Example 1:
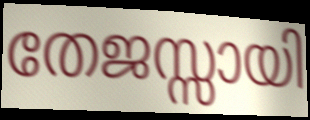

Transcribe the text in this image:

തേജസ്സായി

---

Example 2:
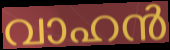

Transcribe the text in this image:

വാഹൻ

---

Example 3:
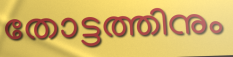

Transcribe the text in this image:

തോട്ടത്തിനും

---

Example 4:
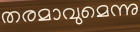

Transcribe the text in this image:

തരമാവുമെന്നു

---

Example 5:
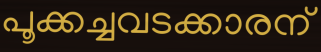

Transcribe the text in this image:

പൂക്കച്ചവടക്കാരന്